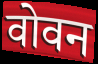
वोवन